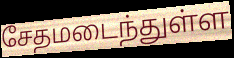
சேதமடைந்துள்ள